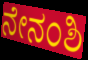
ನೇನಂಶಿ